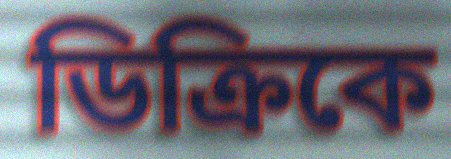
ডিক্রিকে